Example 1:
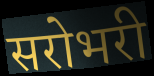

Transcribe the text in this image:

सरोभरी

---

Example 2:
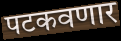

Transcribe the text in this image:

पटकवणार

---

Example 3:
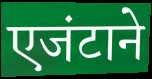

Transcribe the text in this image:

एजंटाने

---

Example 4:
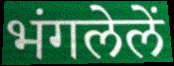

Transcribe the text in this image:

भंगलेलें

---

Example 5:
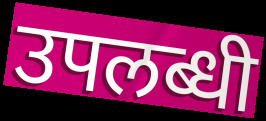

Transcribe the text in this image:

उपलब्धी